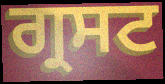
ਗ੍ਰਸਟ